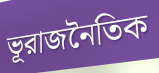
ভূরাজনৈতিক